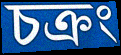
চক্রং